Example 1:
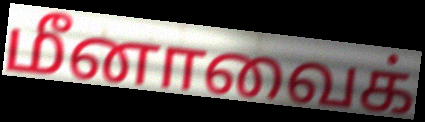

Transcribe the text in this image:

மீனாவைக்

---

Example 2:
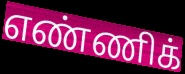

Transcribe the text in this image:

எண்ணிக்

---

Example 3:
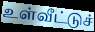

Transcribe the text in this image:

உள்வீட்டுச்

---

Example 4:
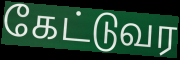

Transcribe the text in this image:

கேட்டுவர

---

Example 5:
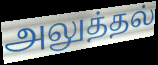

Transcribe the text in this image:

அலுத்தல்